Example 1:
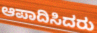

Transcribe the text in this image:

ಆಪಾದಿಸಿದರು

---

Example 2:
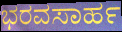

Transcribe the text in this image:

ಭರವಸಾರ್ಹ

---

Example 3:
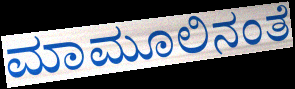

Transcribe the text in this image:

ಮಾಮೂಲಿನಂತೆ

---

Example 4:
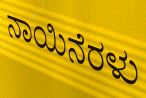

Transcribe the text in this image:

ನಾಯಿನೆರಳು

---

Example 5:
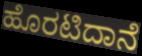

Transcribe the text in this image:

ಹೊರಟಿದಾನೆ